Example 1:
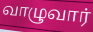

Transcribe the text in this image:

வாழுவார்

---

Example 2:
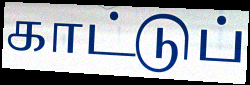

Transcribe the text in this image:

காட்டுப்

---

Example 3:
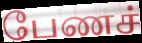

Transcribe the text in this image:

பேணச்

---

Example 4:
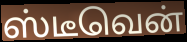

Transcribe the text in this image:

ஸ்டீவென்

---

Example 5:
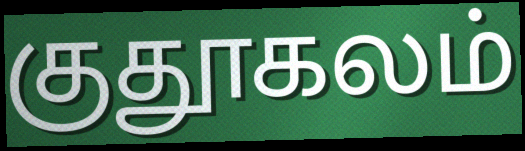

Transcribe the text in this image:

குதூகலம்